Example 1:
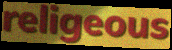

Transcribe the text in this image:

religeous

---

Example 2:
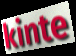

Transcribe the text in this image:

kinte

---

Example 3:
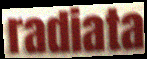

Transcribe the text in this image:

radiata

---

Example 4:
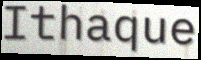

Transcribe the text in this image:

Ithaque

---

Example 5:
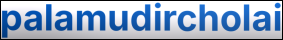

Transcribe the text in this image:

palamudircholai